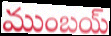
ముంబయ్